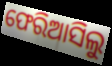
ଫେରିଆସିଲୁ